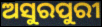
ଅସୁରପୁରୀ